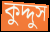
কুদ্দুস